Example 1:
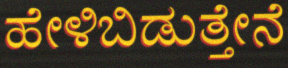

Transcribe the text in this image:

ಹೇಳಿಬಿಡುತ್ತೇನೆ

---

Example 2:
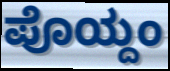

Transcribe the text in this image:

ಪೊಯ್ದಂ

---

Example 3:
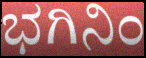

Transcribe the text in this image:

ಭಗಿನಿಂ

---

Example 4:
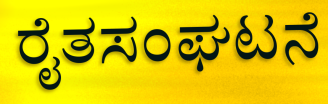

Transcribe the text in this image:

ರೈತಸಂಘಟನೆ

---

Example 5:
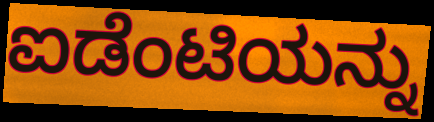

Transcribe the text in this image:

ಐಡೆಂಟಿಯನ್ನು